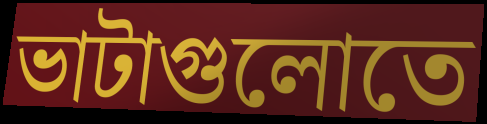
ভাটাগুলোতে